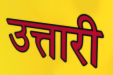
उत्तारी